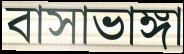
বাসাভাঙ্গা